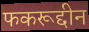
फकरूद्दीन